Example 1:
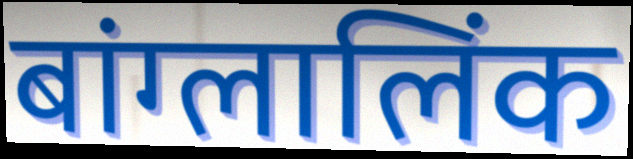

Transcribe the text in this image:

बांग्लालिंक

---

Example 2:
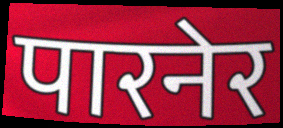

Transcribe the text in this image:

पारनेर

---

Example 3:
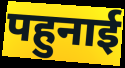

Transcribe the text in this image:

पहुनाई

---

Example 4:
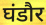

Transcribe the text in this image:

घंडौर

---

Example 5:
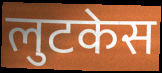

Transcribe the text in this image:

लुटकेस